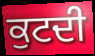
ਕੁਟਦੀ